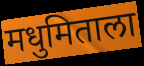
मधुमिताला